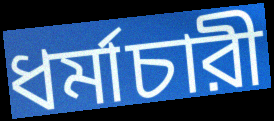
ধর্মাচারী